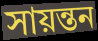
সায়ন্তন